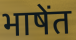
भाषेंत